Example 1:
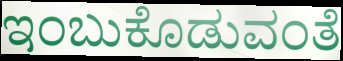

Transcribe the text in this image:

ಇಂಬುಕೊಡುವಂತೆ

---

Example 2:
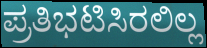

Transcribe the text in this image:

ಪ್ರತಿಭಟಿಸಿರಲಿಲ್ಲ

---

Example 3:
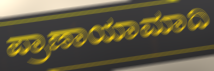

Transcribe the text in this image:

ಪ್ರಾಣಾಯಾಮಾದಿ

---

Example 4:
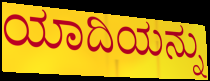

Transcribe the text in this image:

ಯಾದಿಯನ್ನು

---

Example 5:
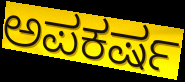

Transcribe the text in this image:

ಅಪಕರ್ಷ